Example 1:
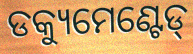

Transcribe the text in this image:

ଡକ୍ୟୁମେଣ୍ଟେଡ୍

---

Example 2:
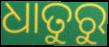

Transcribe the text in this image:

ଧାତୁରୁ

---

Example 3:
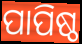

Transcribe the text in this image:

ପାପିଷ୍ଠ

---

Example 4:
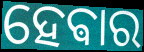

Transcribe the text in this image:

ହେଵାର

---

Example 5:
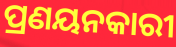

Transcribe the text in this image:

ପ୍ରଣୟନକାରୀ